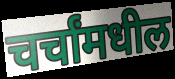
चर्चांमधील